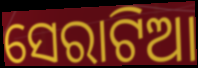
ସେରାଟିଆ